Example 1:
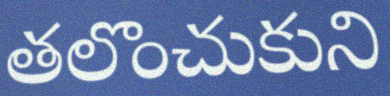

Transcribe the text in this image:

తలొంచుకుని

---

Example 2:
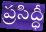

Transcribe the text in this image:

ప్రసిద్ధీ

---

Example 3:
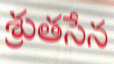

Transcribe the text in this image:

శ్రుతసేన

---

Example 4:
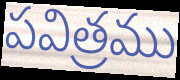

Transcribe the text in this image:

పవిత్రము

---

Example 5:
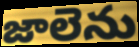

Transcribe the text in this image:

జాలెను